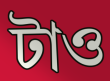
টাও